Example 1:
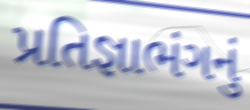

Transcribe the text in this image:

પ્રતિજ્ઞાભંગનું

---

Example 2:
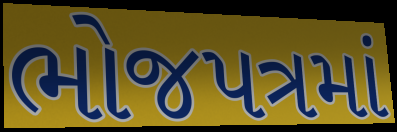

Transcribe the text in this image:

ભોજપત્રમાં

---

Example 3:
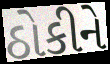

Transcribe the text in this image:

ઠોકીને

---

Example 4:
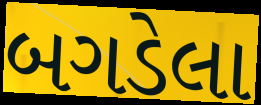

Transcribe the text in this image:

બગડેલા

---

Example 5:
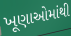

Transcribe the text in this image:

ખૂણાઓમાંથી